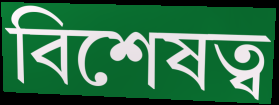
বিশেষত্ব